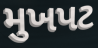
મુખપટ